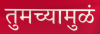
तुमच्यामुळं